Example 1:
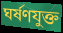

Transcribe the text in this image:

ঘর্ষণযুক্ত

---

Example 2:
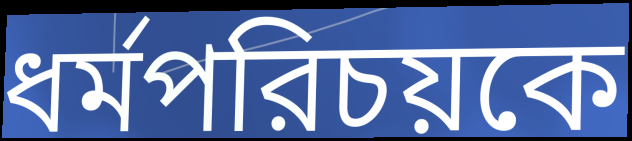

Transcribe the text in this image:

ধর্মপরিচয়কে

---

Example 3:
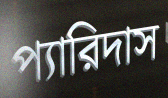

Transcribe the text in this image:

প্যারিদাস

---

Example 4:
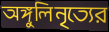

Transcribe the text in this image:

অঙ্গুলিনৃত্যের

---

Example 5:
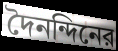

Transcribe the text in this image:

দৈনন্দিনের